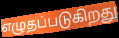
எழுதப்படுகிறது